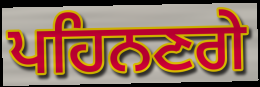
ਪਹਿਨਣਗੇ